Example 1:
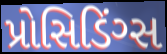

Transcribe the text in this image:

પ્રોસિડિંગ્સ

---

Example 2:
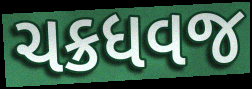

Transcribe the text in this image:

ચક્રધવજ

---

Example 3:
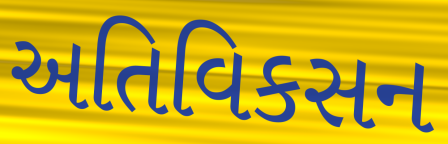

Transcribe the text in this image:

અતિવિકસન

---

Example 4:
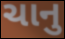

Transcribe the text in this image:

ચાનુ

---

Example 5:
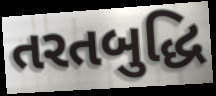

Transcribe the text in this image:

તરતબુદ્ધિ